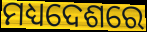
ମଧ୍ୟଦେଶରେ